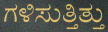
ಗಳಿಸುತ್ತಿತ್ತು